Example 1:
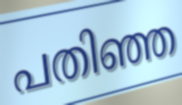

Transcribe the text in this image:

പതിഞ്ഞ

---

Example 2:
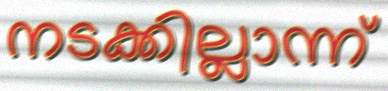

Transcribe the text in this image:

നടക്കില്ലാന്ന്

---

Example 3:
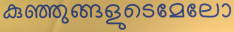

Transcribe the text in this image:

കുഞ്ഞുങ്ങളുടെമേലോ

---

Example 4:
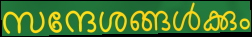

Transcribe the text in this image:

സന്ദേശങ്ങൾക്കും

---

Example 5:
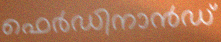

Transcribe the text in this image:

ഫെർഡിനാൻഡ്